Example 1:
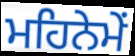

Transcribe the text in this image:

ਮਹਿਨੇਮੇਂ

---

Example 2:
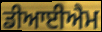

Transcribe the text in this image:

ਡੀਆਈਐਮ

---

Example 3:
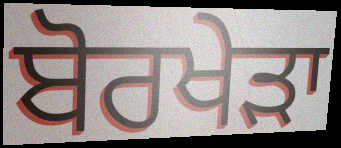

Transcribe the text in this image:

ਬੋਰਖੇੜਾ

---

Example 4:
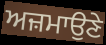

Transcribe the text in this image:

ਅਜ਼ਮਾਉਣੇ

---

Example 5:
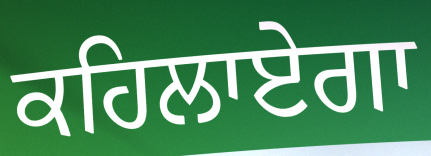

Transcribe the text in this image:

ਕਹਿਲਾਏਗਾ